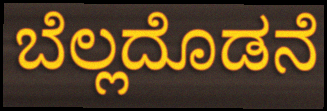
ಬೆಲ್ಲದೊಡನೆ